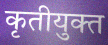
कृतीयुक्त